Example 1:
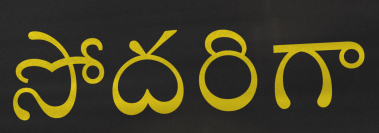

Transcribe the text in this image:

సోదరిగా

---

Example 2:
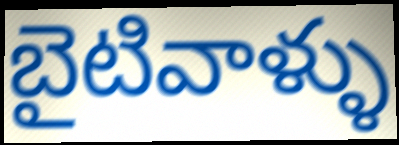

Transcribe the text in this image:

బైటివాళ్ళు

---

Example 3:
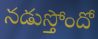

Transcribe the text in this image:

నడుస్తోందో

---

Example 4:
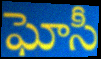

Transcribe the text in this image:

ఘోసీ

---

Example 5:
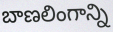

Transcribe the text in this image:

బాణలింగాన్ని